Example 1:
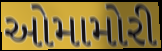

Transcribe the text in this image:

ઓમામોરી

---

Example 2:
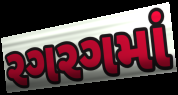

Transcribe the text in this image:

રગરગમાં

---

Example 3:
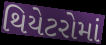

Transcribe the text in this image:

થિયેટરોમાં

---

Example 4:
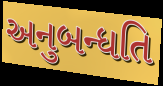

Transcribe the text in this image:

અનુબન્ધતિ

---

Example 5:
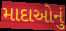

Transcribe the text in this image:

માદાઓનું